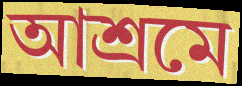
আশ্রমে